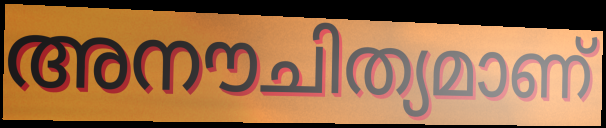
അനൗചിത്യമാണ്